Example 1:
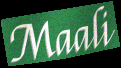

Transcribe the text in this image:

Maali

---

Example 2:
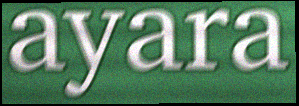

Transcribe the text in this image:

ayara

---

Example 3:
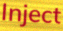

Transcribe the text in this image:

Inject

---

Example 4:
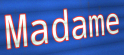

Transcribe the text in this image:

Madame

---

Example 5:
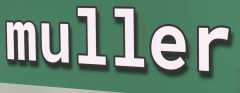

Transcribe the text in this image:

muller